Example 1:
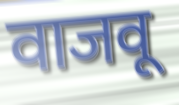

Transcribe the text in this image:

वाजवू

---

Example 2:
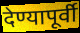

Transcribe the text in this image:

देण्यापूर्वी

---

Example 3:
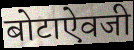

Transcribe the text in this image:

बोटाऐवजी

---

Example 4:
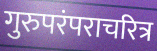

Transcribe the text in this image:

गुरुपरंपराचरित्र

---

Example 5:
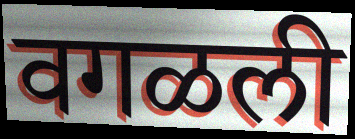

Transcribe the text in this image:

वगळली